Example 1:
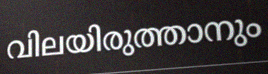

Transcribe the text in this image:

വിലയിരുത്താനും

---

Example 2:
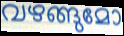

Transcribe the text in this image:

വഴങ്ങുമോ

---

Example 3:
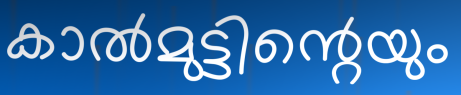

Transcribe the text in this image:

കാൽമുട്ടിന്റെയും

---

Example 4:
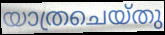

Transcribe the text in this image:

യാത്രചെയ്തു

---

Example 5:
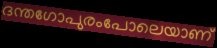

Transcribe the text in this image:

ദന്തഗോപുരംപോലെയാണ്